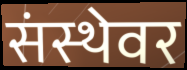
संस्थेवर